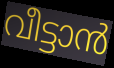
വീട്ടാൻ